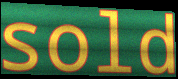
sold